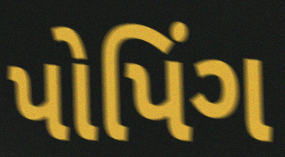
પોપિંગ